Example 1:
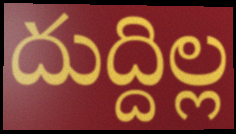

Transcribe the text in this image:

దుద్దిల్ల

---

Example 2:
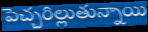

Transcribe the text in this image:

పెచ్చరిల్లుతున్నాయి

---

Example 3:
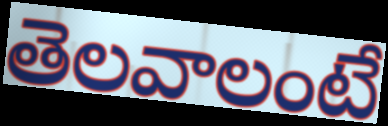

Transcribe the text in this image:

తెలవాలంటే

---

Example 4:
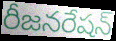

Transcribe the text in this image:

రీజనరేషన్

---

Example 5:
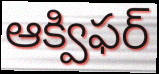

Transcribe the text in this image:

ఆక్విఫర్